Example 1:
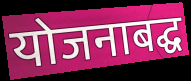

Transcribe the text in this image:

योजनाबद्घ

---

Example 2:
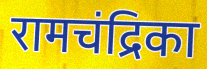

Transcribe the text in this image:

रामचंद्रिका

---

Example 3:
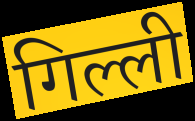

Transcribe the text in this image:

गिल्ली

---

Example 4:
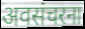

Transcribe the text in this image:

अवसंचरना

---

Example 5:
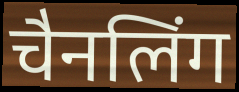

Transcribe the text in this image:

चैनलिंग